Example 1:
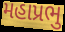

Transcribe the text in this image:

મહાપ્રભુ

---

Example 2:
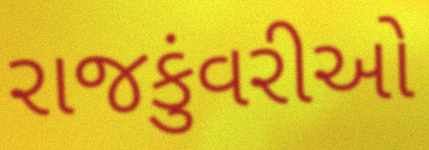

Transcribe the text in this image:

રાજકુંવરીઓ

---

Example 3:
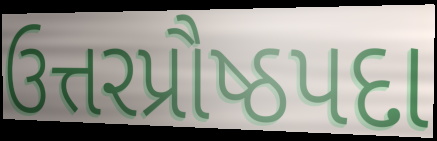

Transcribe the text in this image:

ઉત્તરપ્રૌષ્ઠપદા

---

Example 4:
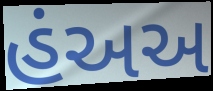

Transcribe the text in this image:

હંઅઅ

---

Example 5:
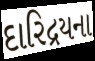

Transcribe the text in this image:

દારિદ્રયના